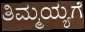
ತಿಮ್ಮಯ್ಯಗೆ